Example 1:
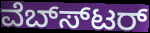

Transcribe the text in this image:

ವೆಬ್ಸ್‍ಟರ್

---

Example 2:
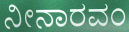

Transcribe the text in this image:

ನೀನಾರವಂ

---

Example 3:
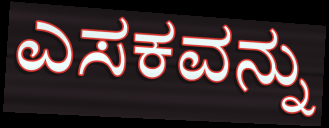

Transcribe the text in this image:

ಎಸಕವನ್ನು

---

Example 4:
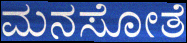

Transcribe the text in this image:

ಮನಸೋತೆ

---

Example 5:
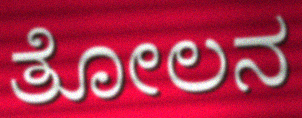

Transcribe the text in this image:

ತೋಲನ